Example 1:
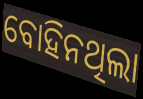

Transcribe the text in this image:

ବୋହିନଥିଲା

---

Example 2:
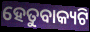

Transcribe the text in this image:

ହେତୁବାକ୍ୟଟି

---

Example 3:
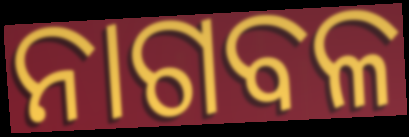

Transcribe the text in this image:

ନାଗବଳ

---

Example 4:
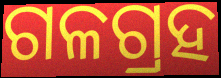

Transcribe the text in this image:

ଗଳଗ୍ରହ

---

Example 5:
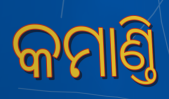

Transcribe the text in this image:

କମାଣ୍ତି